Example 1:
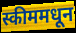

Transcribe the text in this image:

स्कीममधून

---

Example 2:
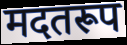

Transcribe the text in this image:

मदतरूप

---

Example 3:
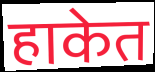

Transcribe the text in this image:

हाकेत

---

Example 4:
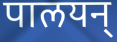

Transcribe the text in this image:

पालयन्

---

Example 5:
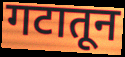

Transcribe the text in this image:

गटातून